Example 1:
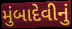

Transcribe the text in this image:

મુંબાદેવીનું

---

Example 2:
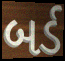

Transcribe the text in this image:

બર્ડ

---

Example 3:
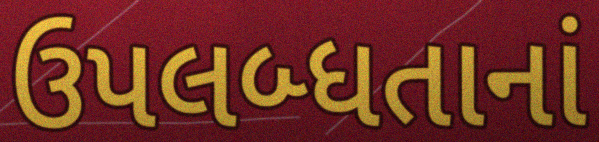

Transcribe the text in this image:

ઉપલબ્ધતાનાં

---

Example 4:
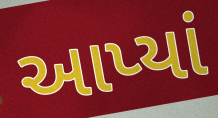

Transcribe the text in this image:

આપ્યાં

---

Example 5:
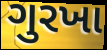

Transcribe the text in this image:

ગુરખા